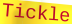
Tickle